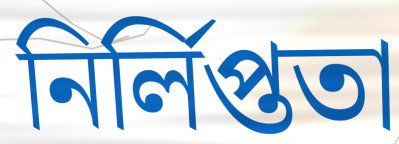
নির্লিপ্ততা